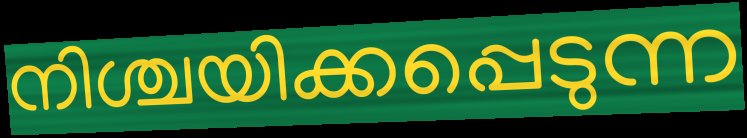
നിശ്ചയിക്കപ്പെടുന്ന